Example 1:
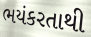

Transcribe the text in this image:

ભયંકરતાથી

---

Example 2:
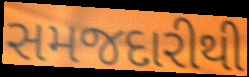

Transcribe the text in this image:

સમજદારીથી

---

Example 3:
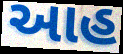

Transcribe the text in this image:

આહ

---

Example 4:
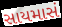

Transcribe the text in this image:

સાયમાસં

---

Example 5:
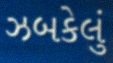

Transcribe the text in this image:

ઝબકેલું